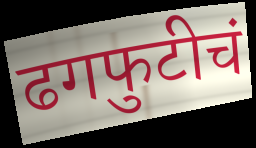
ढगफुटीचं